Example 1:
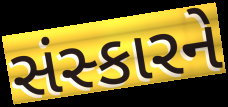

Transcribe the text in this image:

સંસ્કારને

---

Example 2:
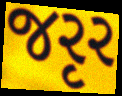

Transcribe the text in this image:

જરૃર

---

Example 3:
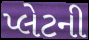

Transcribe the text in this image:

પ્લેટની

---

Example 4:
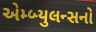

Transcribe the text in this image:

એમ્બ્યુલન્સનો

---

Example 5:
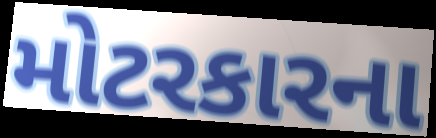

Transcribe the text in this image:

મોટરકારના